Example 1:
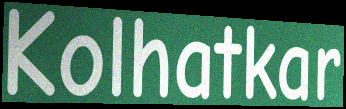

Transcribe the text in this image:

Kolhatkar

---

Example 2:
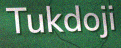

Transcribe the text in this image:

Tukdoji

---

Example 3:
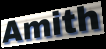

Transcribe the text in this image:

Amith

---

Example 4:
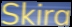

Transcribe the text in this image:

Skira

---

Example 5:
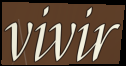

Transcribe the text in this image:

vivir